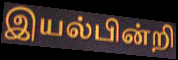
இயல்பின்றி